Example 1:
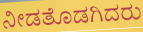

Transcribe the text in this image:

ನೀಡತೊಡಗಿದರು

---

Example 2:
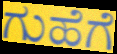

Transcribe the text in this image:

ಗುಹೆಗೆ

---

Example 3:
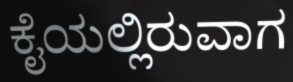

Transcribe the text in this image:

ಕೈಯಲ್ಲಿರುವಾಗ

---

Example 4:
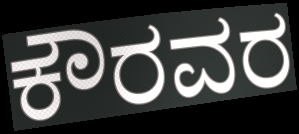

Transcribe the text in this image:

ಕೌರವರ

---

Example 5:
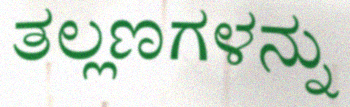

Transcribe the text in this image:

ತಲ್ಲಣಗಳನ್ನು